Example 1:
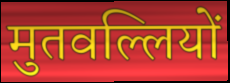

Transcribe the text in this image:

मुतवल्लियों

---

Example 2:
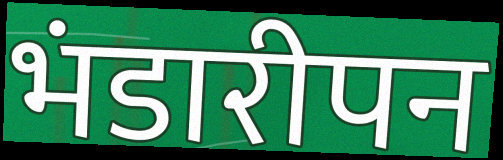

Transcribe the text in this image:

भंडारीपन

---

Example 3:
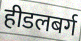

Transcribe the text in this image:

हीडलबर्ग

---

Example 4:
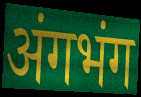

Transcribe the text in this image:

अंगभंग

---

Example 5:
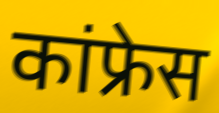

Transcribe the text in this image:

कांफ्रेस